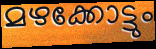
മഴക്കോട്ടും